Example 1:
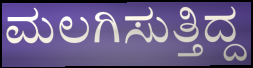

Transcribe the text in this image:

ಮಲಗಿಸುತ್ತಿದ್ದ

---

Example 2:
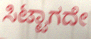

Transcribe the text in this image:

ಸಿಟ್ಟಾಗದೇ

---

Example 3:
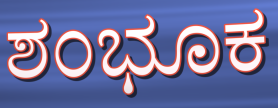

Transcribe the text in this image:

ಶಂಭೂಕ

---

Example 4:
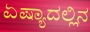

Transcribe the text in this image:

ಏಷ್ಯಾದಲ್ಲಿನ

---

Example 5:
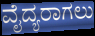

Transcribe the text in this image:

ವೈದ್ಯರಾಗಲು